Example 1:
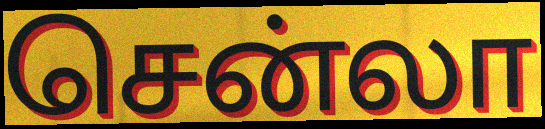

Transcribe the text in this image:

சென்லா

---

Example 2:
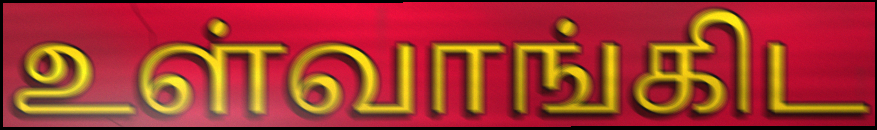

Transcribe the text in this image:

உள்வாங்கிட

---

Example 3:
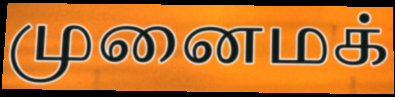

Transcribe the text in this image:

முனைமக்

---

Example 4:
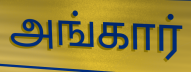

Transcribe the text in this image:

அங்கார்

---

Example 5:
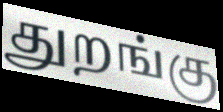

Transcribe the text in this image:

துறங்கு